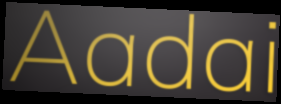
Aadai